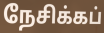
நேசிக்கப்